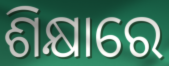
ଶିକ୍ଷାରେ